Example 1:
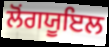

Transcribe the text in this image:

ਲੋਂਗਯੂਇਲ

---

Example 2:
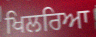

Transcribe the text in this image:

ਖਿਲਰਿਆ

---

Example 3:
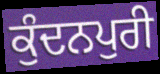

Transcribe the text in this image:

ਕੁੰਦਨਪੁਰੀ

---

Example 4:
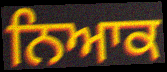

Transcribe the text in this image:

ਨਿਆਕ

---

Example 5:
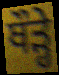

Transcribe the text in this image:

ਥੌੜ੍ਹੇ